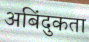
अबिंदुकता